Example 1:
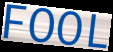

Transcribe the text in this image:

FOOL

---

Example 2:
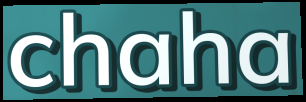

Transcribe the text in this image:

chaha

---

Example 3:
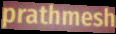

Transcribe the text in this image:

prathmesh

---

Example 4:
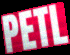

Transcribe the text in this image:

PETL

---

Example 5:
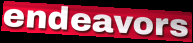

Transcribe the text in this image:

endeavors